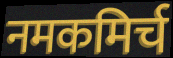
नमकमिर्च